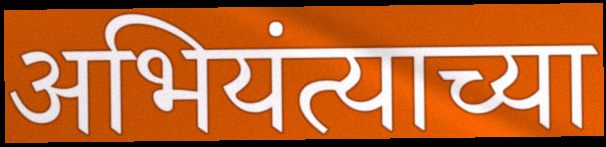
अभियंत्याच्या